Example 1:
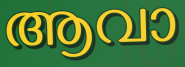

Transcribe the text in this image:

ആവാ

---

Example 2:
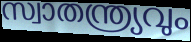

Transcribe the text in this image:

സ്വാതന്ത്ര്യവും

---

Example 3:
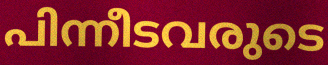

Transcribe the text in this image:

പിന്നീടവരുടെ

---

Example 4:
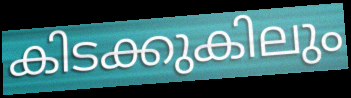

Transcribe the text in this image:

കിടക്കുകിലും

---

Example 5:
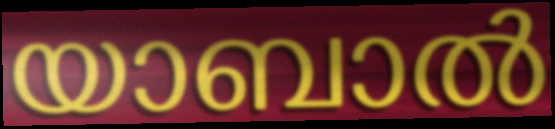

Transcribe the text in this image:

യാബാൽ